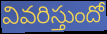
వివరిస్తుందో